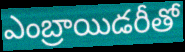
ఎంబ్రాయిడరీతో